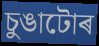
চুঙাটোৰ